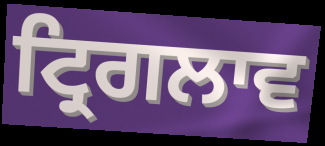
ਟ੍ਰਿਗਲਾਵ